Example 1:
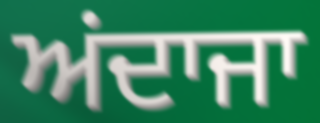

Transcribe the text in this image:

ਅਂਦਾਜਾ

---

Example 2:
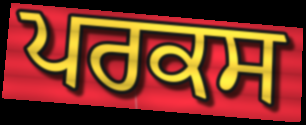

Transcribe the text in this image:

ਪਰਕਸ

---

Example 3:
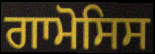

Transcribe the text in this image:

ਗਾਮੋਸਿਸ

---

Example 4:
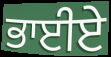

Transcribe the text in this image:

ਭਾਈਏ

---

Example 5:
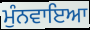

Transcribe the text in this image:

ਮੁੰਨਵਾਇਆ